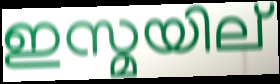
ഇസ്മയില്